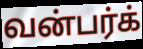
வன்பர்க்